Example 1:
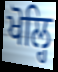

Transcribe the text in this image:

ਖੋਲ੍ਹਿ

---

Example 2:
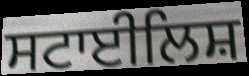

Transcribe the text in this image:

ਸਟਾਈਲਿਸ਼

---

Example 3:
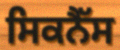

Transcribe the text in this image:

ਸਿਕਨੈੱਸ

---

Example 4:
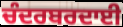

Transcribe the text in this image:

ਚੰਦਰਬਰਦਾਈ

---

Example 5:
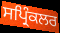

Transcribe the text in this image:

ਸਪ੍ਰਿੰਕਲਰ